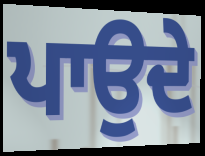
ਪਾਉਦੇ